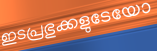
ഇടപ്രഭുക്കളുടേയോ